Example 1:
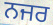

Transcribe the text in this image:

ਨਜਰ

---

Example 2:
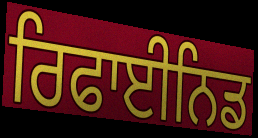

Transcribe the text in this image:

ਰਿਫਾਈਨਿਡ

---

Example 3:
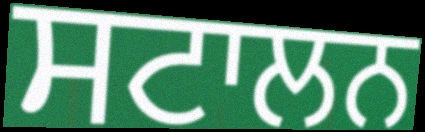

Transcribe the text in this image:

ਸਟਾਲਨ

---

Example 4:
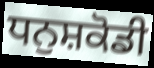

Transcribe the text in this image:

ਧਨੁਸ਼ਕੋਡੀ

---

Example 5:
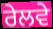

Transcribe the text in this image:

ਰੇਲਵੇ